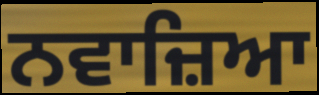
ਨਵਾਜ਼ਿਆ